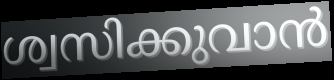
ശ്വസിക്കുവാൻ